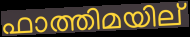
ഫാത്തിമയില്